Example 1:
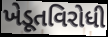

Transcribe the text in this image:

ખેડૂતવિરોધી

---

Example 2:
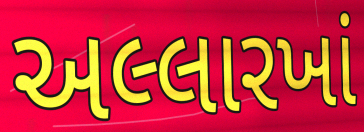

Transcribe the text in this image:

અલ્લારખાં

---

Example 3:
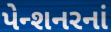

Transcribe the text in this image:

પેન્શનરનાં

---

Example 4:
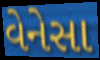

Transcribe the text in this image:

વેનેસા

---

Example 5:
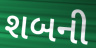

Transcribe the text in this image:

શબની